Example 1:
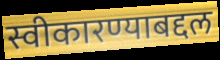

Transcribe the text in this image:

स्वीकारण्याबद्दल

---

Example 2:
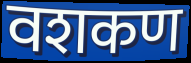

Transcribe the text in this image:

वशकण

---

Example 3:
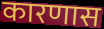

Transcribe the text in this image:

कारणास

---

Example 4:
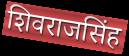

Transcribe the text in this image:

शिवराजसिंह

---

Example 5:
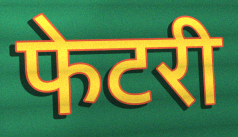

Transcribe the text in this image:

फेटरी